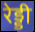
रेड्डी